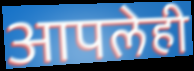
आपलेही